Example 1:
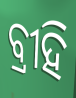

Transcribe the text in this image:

ବ୍ରୀହି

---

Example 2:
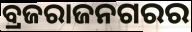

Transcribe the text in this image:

ବ୍ରଜରାଜନଗରର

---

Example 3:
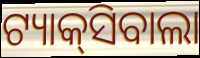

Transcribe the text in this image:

ଟ୍ୟାକ୍‌ସିବାଲା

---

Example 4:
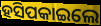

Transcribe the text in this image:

ହସିପକାଇଲେ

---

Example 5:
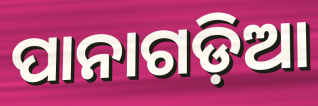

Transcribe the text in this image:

ପାନାଗଡ଼ିଆ